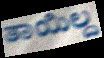
ತಾಯಿಲ್ದ